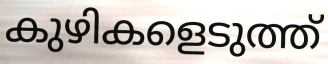
കുഴികളെടുത്ത്